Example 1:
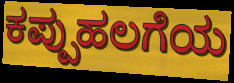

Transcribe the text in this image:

ಕಪ್ಪುಹಲಗೆಯ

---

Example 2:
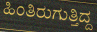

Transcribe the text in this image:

ಹಿಂತಿರುಗುತ್ತಿದ್ದ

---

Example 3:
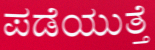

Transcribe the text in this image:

ಪಡೆಯುತ್ತೆ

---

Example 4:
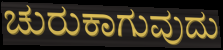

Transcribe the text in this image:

ಚುರುಕಾಗುವುದು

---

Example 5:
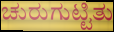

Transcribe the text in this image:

ಚುರುಗುಟ್ಟಿತು